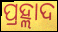
ପ୍ରହ୍ଲାଦ